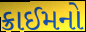
ક્રાઈમનો